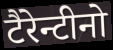
टैरेन्टीनो